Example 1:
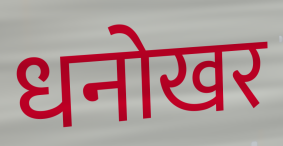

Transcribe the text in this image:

धनोखर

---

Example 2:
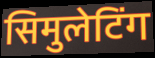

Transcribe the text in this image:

सिमुलेटिंग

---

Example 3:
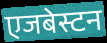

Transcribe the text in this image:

एजबेस्टन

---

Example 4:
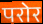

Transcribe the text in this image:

परोर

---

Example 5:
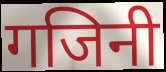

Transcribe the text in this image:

गजिनी